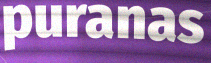
puranas